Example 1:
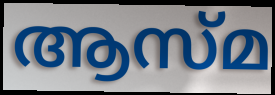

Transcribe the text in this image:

ആസ്മ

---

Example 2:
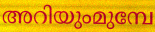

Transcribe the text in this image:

അറിയുംമുമ്പേ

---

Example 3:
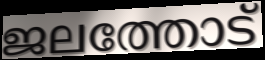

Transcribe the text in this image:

ജലത്തോട്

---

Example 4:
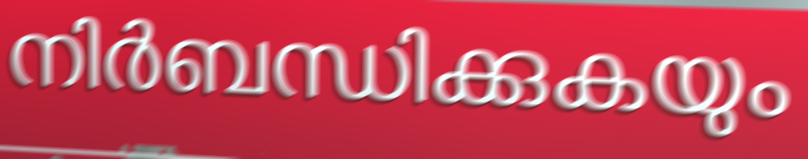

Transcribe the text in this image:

നിർബന്ധിക്കുകയും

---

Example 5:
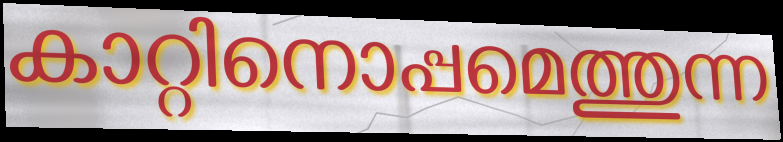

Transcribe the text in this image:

കാറ്റിനൊപ്പമെത്തുന്ന